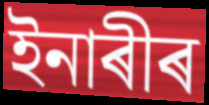
ইনাৰীৰ